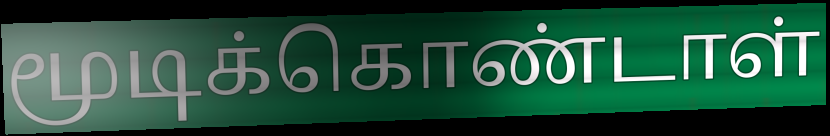
மூடிக்கொண்டாள்